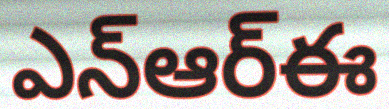
ఎన్ఆర్ఈ